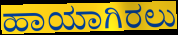
ಹಾಯಾಗಿರಲು